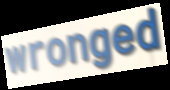
wronged